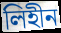
লিহীন